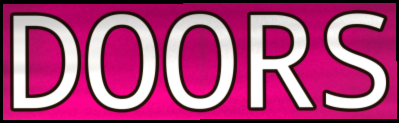
DOORS